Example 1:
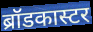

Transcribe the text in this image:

ब्रॉडकास्टर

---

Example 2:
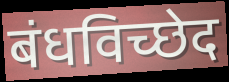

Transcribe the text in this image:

बंधविच्छेद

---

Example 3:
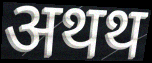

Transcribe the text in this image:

अथथ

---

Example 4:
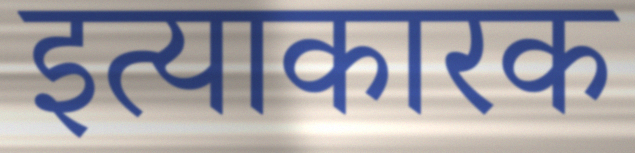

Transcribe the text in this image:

इत्याकारक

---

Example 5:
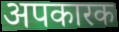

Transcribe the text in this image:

अपकारक